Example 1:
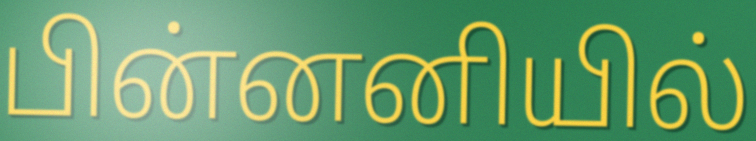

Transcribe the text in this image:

பின்னனியில்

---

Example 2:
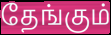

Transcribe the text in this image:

தேங்கும்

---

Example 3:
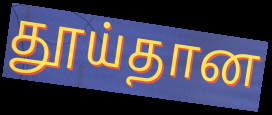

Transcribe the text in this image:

தூய்தான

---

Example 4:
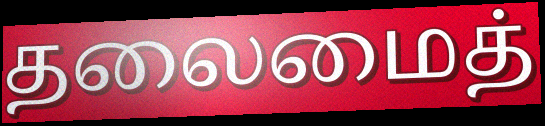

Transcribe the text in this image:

தலைமைத்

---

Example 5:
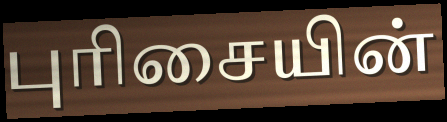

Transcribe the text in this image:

புரிசையின்